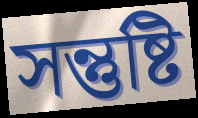
সন্তুষ্টি